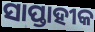
ସାପ୍ତାହୀକ